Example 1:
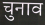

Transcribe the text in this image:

चुनाव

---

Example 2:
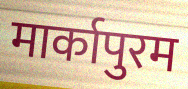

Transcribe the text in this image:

मार्कापुरम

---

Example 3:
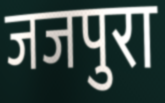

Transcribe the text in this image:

जजपुरा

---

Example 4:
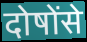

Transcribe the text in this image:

दोषोंसे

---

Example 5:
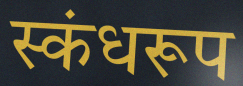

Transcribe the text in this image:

स्कंधरूप